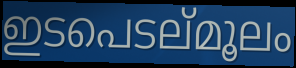
ഇടപെടല്മൂലം